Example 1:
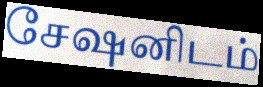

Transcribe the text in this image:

சேஷனிடம்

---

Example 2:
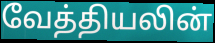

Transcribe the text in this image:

வேத்தியலின்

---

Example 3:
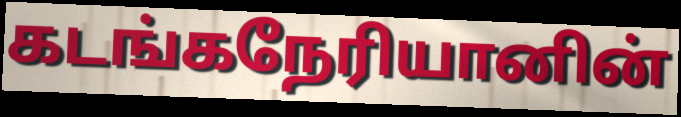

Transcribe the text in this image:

கடங்கநேரியானின்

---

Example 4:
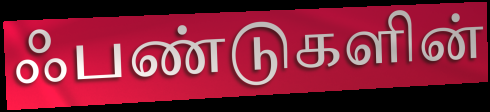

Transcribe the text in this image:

ஃபண்டுகளின்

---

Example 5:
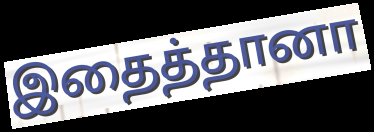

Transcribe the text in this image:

இதைத்தானா